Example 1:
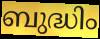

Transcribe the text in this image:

ബുദ്ധിം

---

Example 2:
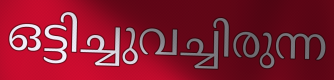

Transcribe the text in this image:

ഒട്ടിച്ചുവച്ചിരുന്ന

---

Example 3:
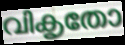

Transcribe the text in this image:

വികൃതോ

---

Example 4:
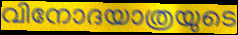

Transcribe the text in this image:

വിനോദയാത്രയുടെ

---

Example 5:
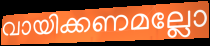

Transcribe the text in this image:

വായിക്കണമല്ലോ